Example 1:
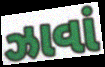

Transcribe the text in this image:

ઝાવાં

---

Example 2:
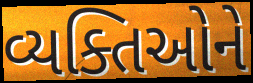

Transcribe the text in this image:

વ્યક્તિઓને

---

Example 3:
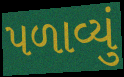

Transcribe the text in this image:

પળાવ્યું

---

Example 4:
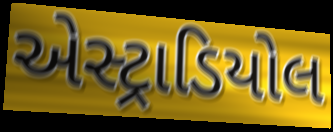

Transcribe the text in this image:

એસ્ટ્રાડિયોલ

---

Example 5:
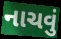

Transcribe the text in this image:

નાચવું